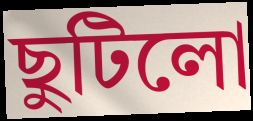
ছুটিলো